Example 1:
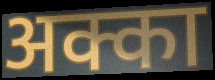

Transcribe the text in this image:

अक्का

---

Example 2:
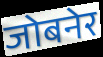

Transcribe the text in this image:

जोबनेर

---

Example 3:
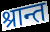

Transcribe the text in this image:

श्रान्त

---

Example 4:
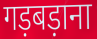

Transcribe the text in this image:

गड़बड़ाना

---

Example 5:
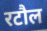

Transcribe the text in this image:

रटौल